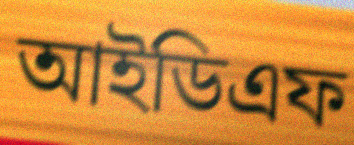
আইডিএফ